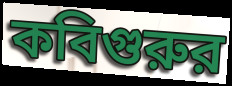
কবিগুরুর